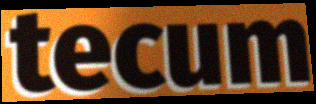
tecum